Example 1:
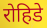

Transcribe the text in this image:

रोहिडे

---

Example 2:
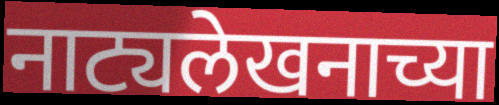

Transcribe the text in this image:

नाट्यलेखनाच्या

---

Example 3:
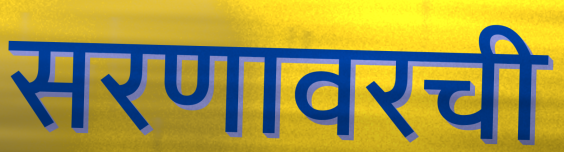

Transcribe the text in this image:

सरणावरची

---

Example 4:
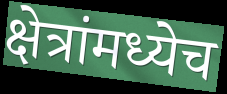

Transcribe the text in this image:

क्षेत्रांमध्येच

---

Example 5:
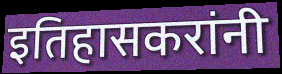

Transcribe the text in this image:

इतिहासकरांनी